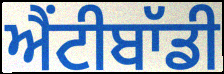
ਐਂਟੀਬਾੱਡੀ